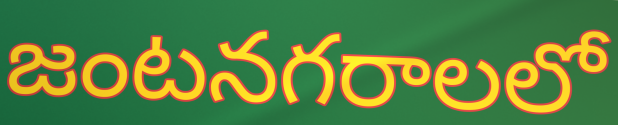
జంటనగరాలలో